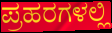
ಪ್ರಹರಗಳಲ್ಲಿ